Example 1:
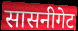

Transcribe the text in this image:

सासनीगेट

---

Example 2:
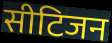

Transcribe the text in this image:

सीटिजन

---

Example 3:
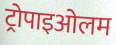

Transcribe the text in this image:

ट्रोपाइओलम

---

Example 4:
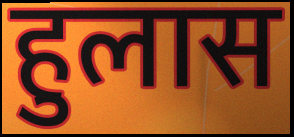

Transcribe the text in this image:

हुलास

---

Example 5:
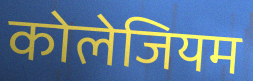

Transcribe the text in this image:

कोलेजियम